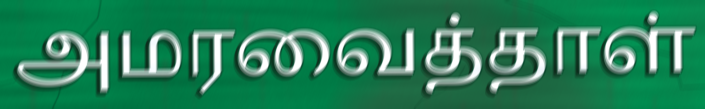
அமரவைத்தாள்